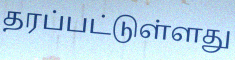
தரப்பட்டுள்ளது